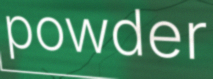
powder